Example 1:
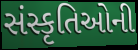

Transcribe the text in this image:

સંસ્કૃતિઓની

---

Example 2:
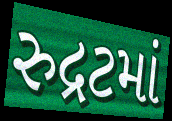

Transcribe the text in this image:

રુદ્રટમાં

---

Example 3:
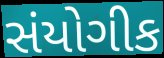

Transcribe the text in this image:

સંયોગીક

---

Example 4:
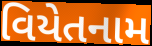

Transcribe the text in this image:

વિયેતનામ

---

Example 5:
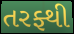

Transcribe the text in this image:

તરફ્થી